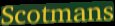
Scotmans